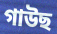
গাউছ